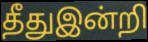
தீதுஇன்றி